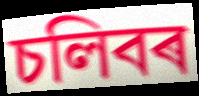
চলিবৰ